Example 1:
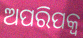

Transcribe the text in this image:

ଅପରିପକ୍ୱ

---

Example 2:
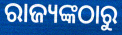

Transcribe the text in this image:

ରାଜ୍ୟଙ୍କଠାରୁ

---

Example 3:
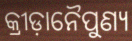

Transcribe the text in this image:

କ୍ରୀଡ଼ାନୈପୁଣ୍ୟ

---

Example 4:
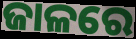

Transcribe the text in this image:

ଜାଳରେ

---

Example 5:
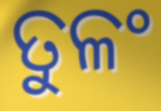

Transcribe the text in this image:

ତୁଳଂ